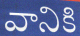
వానికి